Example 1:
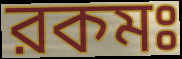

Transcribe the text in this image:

রকমঃ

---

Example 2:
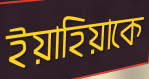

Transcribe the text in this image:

ইয়াহিয়াকে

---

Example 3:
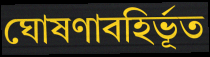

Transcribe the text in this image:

ঘোষণাবহির্ভূত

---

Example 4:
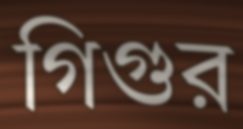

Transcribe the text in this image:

গিগুর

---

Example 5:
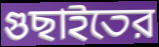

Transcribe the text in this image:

গুছাইতের